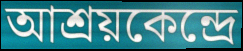
আশ্রয়কেন্দ্রে